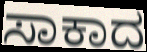
ಸಾಕಾದ